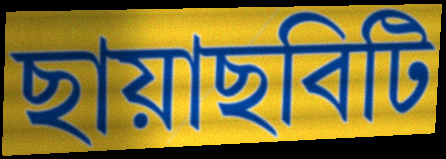
ছায়াছবিটি